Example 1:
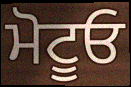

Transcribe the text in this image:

ਮੋਟੂਓ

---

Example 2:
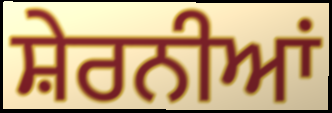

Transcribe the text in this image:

ਸ਼ੇਰਨੀਆਂ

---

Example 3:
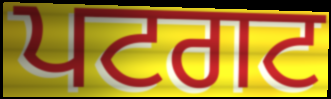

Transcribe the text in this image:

ਪਟਗਟ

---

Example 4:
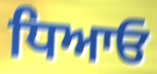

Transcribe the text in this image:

ਧਿਆਓ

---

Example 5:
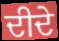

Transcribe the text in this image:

ਦੀਦੇ